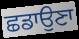
ਛਡਾਉਣਾ